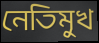
নেতিমুখ